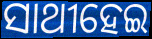
ସାଥୀହେଇ